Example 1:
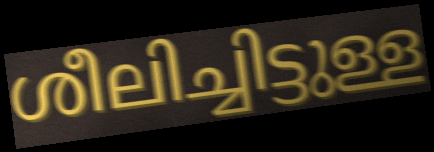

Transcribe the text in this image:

ശീലിച്ചിട്ടുള്ള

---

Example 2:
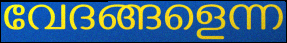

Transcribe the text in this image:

വേദങ്ങളെന്ന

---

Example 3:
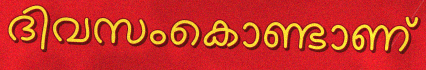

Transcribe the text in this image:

ദിവസംകൊണ്ടാണ്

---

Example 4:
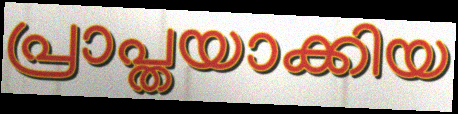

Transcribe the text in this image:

പ്രാപ്തയാക്കിയ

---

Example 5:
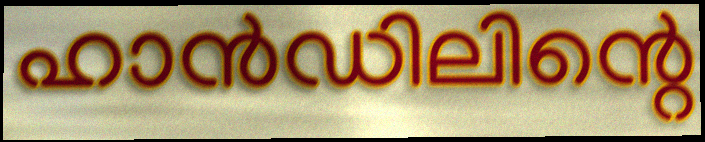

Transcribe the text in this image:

ഹാൻഡിലിന്റെ